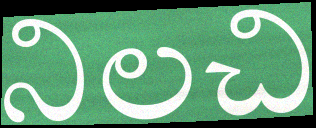
నిలచి